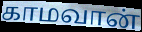
காமவான்